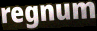
regnum